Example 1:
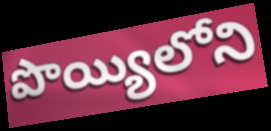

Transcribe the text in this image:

పొయ్యిలోని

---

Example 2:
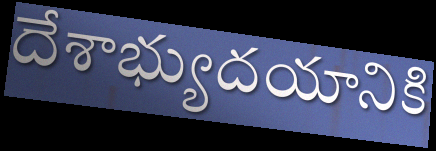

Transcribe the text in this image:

దేశాభ్యుదయానికి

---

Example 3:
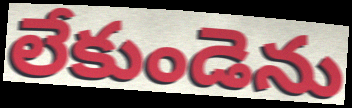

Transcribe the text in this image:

లేకుండెను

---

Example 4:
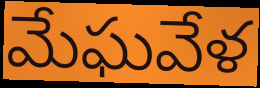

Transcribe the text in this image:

మేఘవేళ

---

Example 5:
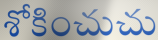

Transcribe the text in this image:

శోకించుచు